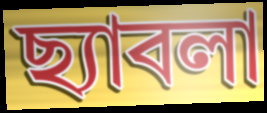
ছ্যাবলা